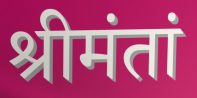
श्रीमंतां